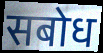
सबोध